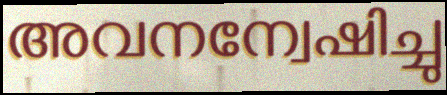
അവനന്വേഷിച്ചു